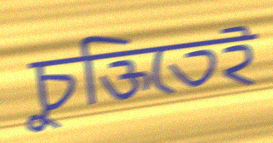
চুক্তিতেই